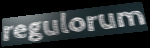
regulorum